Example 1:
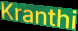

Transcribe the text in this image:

Kranthi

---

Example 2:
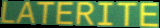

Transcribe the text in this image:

LATERITE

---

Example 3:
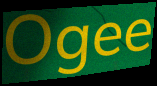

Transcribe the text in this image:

Ogee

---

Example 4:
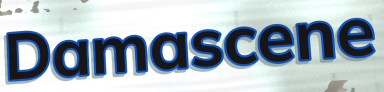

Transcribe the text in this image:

Damascene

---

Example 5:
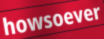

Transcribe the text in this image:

howsoever